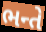
ભન્તે